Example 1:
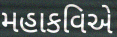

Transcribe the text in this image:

મહાકવિએ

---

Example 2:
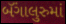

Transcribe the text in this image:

બૅંગાલુરુમાં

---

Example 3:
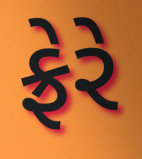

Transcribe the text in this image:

ફ્રેરે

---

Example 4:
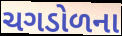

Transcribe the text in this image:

ચગડોળના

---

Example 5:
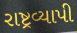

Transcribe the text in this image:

રાષ્ટ્રવ્યાપી